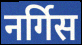
नर्गिस